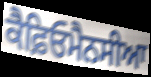
ਕੈਫ਼ਿਓਮੈਨਸੀਆ